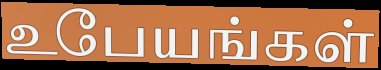
உபேயங்கள்